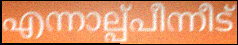
എന്നാല്പ്പീന്നീട്